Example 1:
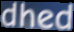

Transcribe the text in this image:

dhed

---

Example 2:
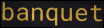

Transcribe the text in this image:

banquet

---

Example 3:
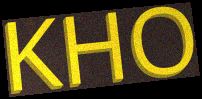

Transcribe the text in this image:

KHO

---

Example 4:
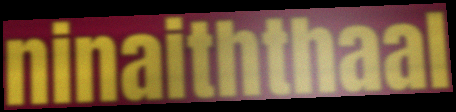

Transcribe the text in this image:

ninaiththaal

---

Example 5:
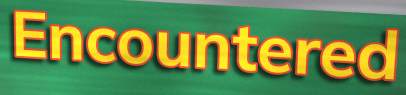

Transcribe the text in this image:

Encountered